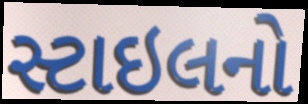
સ્ટાઇલનો